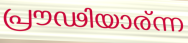
പ്രൗഢിയാര്ന്ന